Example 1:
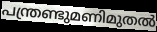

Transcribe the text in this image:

പന്ത്രണ്ടുമണിമുതൽ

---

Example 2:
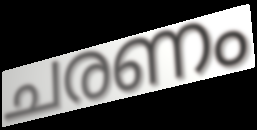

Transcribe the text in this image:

ചരണം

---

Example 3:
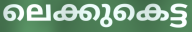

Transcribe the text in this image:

ലെക്കുകെട്ട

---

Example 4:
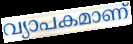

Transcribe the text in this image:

വ്യാപകമാണ്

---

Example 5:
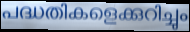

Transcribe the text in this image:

പദ്ധതികളെക്കുറിച്ചും